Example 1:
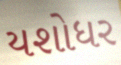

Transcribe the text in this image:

યશોધર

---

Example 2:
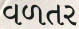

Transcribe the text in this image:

વળતર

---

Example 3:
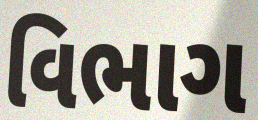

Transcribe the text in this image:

વિભાગ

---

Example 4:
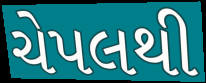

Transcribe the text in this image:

ચેપલથી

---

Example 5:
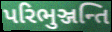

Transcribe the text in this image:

પરિભુઞ્જન્તિ